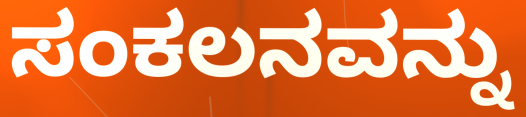
ಸಂಕಲನವನ್ನು